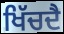
ਖਿੱਚਦੈ